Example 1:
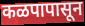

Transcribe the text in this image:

कळपापासून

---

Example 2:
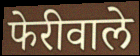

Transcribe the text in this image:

फेरीवाले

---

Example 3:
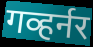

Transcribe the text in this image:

गव्हर्नर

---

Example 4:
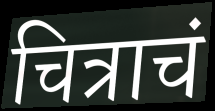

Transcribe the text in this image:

चित्राचं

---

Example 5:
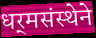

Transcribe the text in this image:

धर्मसंस्थेने